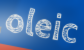
oleic